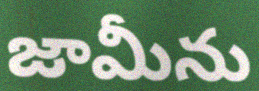
జామీను